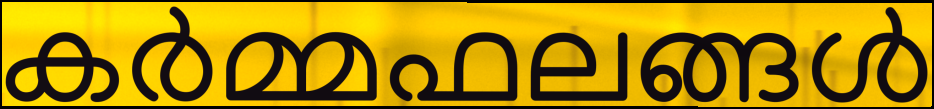
കർമ്മഫലങ്ങൾ